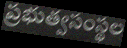
ప్రభుత్వసంస్థల